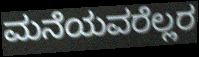
ಮನೆಯವರೆಲ್ಲರ